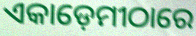
ଏକାଡ଼େମୀଠାରେ